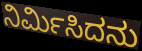
ನಿರ್ಮಿಸಿದನು